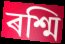
ৰশ্মি